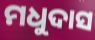
ମଧୁଦାସ